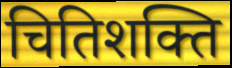
चितिशक्ति